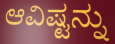
ಆವಿಷ್ಟನ್ನು